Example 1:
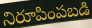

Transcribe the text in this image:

నిరూపింపబడి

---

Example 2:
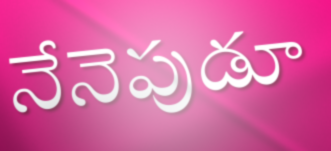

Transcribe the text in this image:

నేనెపుడూ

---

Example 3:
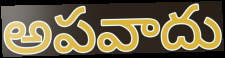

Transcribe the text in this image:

అపవాదు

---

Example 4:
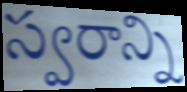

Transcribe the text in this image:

స్వరాన్ని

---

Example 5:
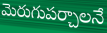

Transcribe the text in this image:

మెరుగుపర్చాలనే